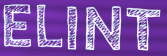
ELINT